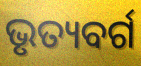
ଭୃତ୍ୟବର୍ଗ